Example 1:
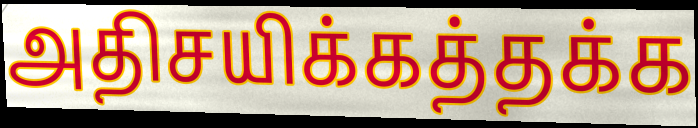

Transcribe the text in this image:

அதிசயிக்கத்தக்க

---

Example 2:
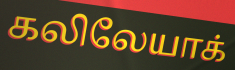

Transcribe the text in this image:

கலிலேயாக்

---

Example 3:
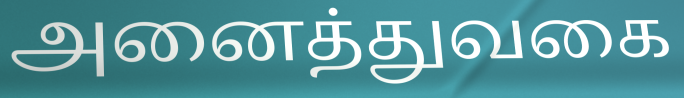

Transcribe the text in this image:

அனைத்துவகை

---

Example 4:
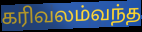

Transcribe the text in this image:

கரிவலம்வந்த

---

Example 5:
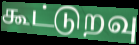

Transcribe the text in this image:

கூட்டுறவு